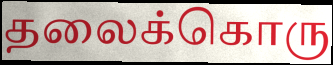
தலைக்கொரு